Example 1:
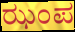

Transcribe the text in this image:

ಝಂಪ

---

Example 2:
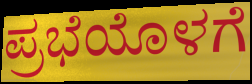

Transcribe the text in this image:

ಪ್ರಭೆಯೊಳಗೆ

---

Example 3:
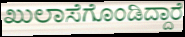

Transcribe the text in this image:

ಖುಲಾಸೆಗೊಂಡಿದ್ದಾರೆ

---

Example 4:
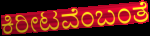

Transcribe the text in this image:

ಕಿರೀಟವೆಂಬಂತೆ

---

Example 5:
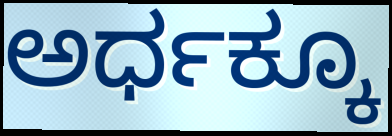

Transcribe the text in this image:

ಅರ್ಧಕ್ಕೂ